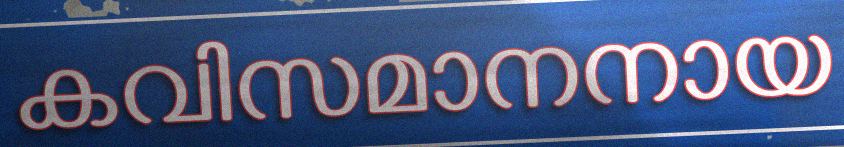
കവിസമാനനായ